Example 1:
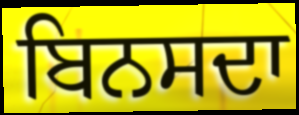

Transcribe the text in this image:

ਬਿਨਸਦਾ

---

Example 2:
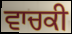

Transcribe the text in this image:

ਵਾਚਕੀ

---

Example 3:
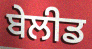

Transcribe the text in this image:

ਬੇਲੀਡ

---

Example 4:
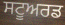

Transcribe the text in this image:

ਸਟੂਅਰਡ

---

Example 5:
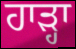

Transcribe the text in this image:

ਹਾੜ੍ਹਾ